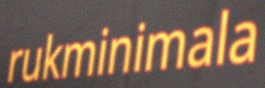
rukminimala